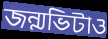
জন্মভিটাও